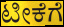
ಟೀಕೆಗೆ